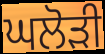
ਘਲੋਡ਼ੀ